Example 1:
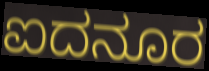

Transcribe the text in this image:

ಐದನೂರ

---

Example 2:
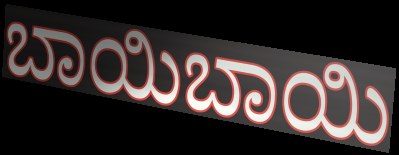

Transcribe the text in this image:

ಬಾಯಿಬಾಯಿ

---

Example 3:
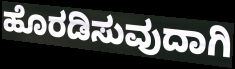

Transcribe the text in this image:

ಹೊರಡಿಸುವುದಾಗಿ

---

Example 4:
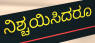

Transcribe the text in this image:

ನಿಶ್ಚಯಿಸಿದರೂ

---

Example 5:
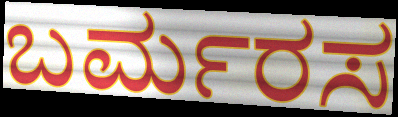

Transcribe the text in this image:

ಬರ್ಮರಸ